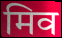
मिव